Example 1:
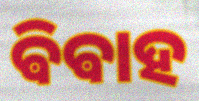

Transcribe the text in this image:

ଵିଵାହ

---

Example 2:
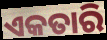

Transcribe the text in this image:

ଏକତାରି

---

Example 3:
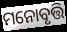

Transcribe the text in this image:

ମନୋବୃତ୍ତି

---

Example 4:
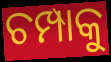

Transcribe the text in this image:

ଚମ୍ପାକୁ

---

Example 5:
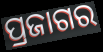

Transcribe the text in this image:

ପ୍ରଜାଗର